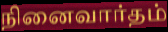
நினைவார்தம்